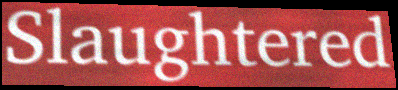
Slaughtered